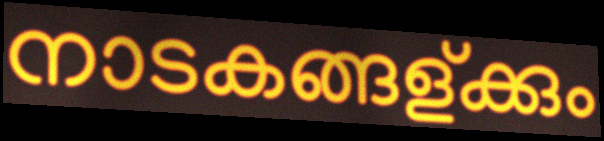
നാടകങ്ങള്ക്കും